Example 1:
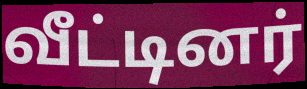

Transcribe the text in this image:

வீட்டினர்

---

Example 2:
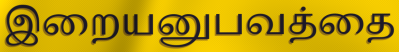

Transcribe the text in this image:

இறையனுபவத்தை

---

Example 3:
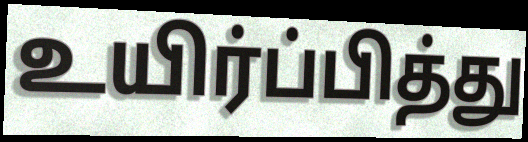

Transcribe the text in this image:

உயிர்ப்பித்து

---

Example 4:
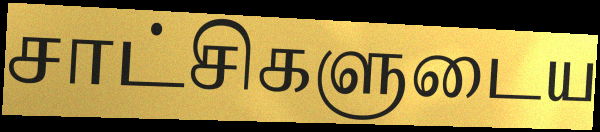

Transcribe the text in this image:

சாட்சிகளுடைய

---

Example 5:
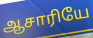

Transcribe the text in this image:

ஆசாரியே